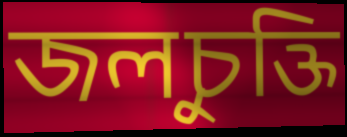
জলচুক্তি